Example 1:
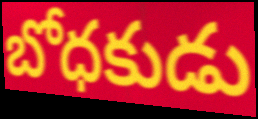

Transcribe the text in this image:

బోధకుడు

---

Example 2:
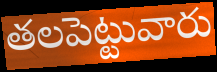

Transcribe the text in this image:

తలపెట్టువారు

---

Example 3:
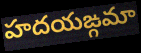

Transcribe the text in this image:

హదయఙ్గమా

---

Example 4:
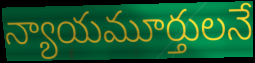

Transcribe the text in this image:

న్యాయమూర్తులనే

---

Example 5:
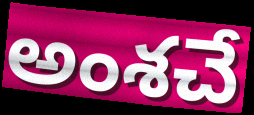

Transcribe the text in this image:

అంశచే